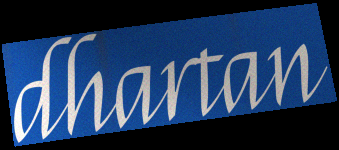
dhartan